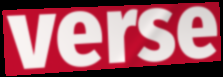
verse